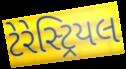
ટેરેસ્ટ્રિયલ